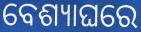
ବେଶ୍ୟାଘରେ